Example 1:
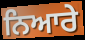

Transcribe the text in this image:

ਨਿਆਰੇ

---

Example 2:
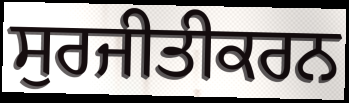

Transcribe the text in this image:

ਸੁਰਜੀਤੀਕਰਨ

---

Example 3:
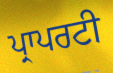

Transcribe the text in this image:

ਪ੍ਰਾਪਰਟੀ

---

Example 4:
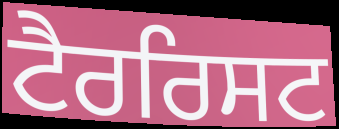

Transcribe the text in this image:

ਟੈਰਰਿਸਟ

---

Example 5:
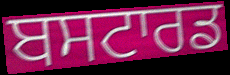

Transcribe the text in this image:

ਬਸਟਾਰਡ